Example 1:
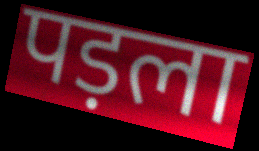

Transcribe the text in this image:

पड़ला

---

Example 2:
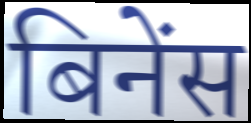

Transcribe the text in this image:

बिनेंस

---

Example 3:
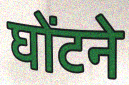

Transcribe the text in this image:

घोंटने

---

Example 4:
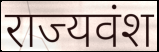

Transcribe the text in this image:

राज्यवंश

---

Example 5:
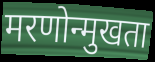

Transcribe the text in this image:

मरणोन्मुखता